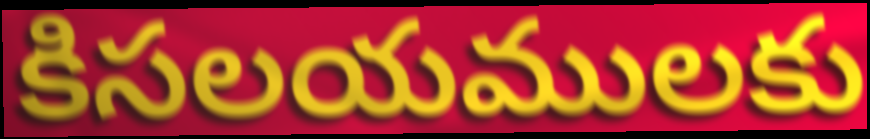
కిసలయములకు